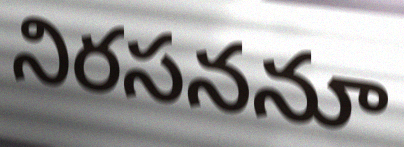
నిరసననూ